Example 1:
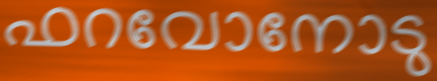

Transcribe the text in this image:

ഫറവോനോടു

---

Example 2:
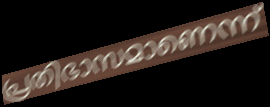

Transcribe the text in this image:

പ്രതിഭാസമാണെന്ന്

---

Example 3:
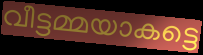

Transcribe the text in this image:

വീട്ടമ്മയാകട്ടെ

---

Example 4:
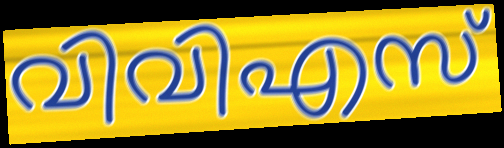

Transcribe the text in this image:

വിവിഎസ്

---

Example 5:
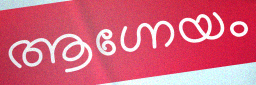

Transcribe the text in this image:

ആഗ്നേയം